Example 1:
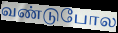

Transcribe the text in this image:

வண்டுபோல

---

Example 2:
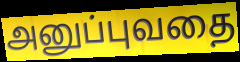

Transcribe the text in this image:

அனுப்புவதை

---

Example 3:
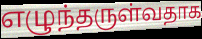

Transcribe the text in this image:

எழுந்தருள்வதாக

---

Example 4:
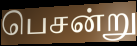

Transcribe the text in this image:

பெசன்று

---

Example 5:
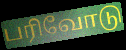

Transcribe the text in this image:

பரிவோடு